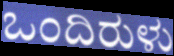
ಒಂದಿರುಳು